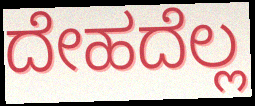
ದೇಹದೆಲ್ಲ